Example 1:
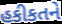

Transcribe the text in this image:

હકીકતને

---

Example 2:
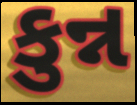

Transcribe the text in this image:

કુન્ન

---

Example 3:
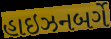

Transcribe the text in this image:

હાઇઝનબર્ગે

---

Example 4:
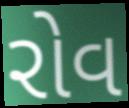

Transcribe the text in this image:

રોવ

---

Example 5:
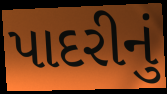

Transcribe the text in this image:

પાદરીનું